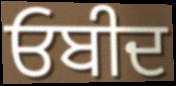
ਓਬੀਦ